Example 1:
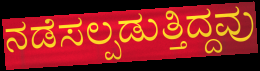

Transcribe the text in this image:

ನಡೆಸಲ್ಪಡುತ್ತಿದ್ದವು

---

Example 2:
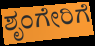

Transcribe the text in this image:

ಶೃಂಗೇರಿಗೆ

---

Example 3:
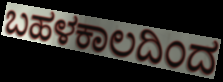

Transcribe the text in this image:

ಬಹಳಕಾಲದಿಂದ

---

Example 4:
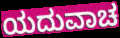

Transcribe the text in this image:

ಯದುವಾಚ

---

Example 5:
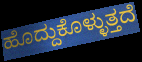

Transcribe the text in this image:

ಹೊದ್ದುಕೊಳ್ಳುತ್ತದೆ